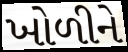
ખોળીને